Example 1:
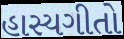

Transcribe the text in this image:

હાસ્યગીતો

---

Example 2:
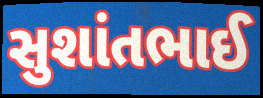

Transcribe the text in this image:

સુશાંતભાઈ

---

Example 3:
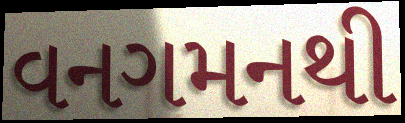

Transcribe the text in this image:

વનગમનથી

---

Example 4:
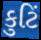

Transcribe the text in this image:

કુટિં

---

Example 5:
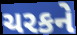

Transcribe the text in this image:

ચરકને